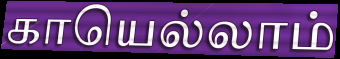
காயெல்லாம்